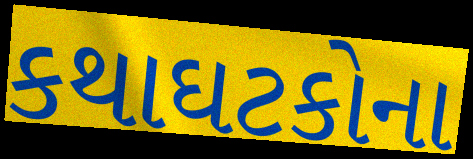
કથાઘટકોના